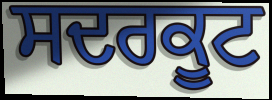
ਸਦਰਕੂਟ